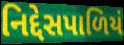
નિદ્દેસપાળિયં